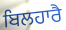
ਬਿਲਹਾਰੈ